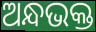
ଅନ୍ଧଭକ୍ତ